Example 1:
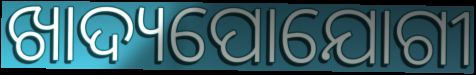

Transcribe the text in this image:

ଖାଦ୍ୟପୋଯୋଗୀ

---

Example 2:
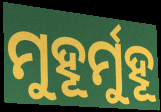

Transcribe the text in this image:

ମୁହୂର୍ମୁହୂ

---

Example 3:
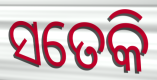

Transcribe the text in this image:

ସତେକି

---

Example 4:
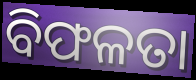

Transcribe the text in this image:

ବିଫଳତା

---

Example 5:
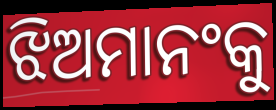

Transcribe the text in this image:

ଝିଅମାନଂକୁ